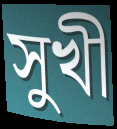
সুখী